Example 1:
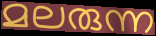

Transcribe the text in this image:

മലരുന്ന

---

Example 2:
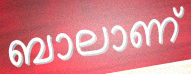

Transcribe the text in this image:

ബാലാണ്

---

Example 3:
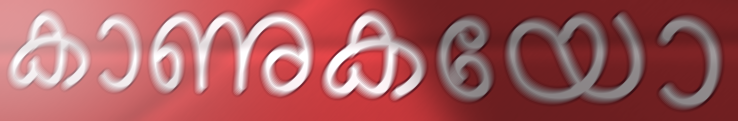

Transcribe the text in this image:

കാണുകയോ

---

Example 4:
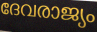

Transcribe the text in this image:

ദേവരാജ്യം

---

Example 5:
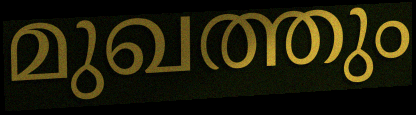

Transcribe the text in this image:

മുഖത്തും